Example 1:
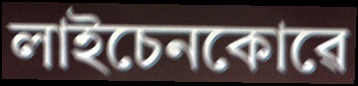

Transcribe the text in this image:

লাইচেনকোৱে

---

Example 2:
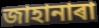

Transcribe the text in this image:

জাহানাৰা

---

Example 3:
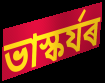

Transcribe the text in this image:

ভাস্কৰ্যৰ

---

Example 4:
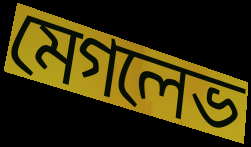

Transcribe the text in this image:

মেগলেভ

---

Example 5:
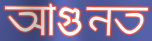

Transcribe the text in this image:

আগুনত